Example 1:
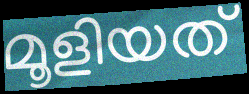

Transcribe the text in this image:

മൂളിയത്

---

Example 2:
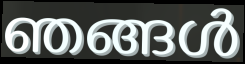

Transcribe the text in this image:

ഞങ്ങൾ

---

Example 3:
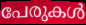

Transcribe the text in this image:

പേരുകൾ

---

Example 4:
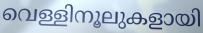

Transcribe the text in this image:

വെള്ളിനൂലുകളായി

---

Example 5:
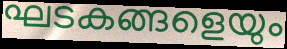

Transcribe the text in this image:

ഘടകങ്ങളെയും